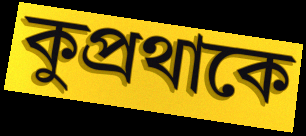
কুপ্রথাকে